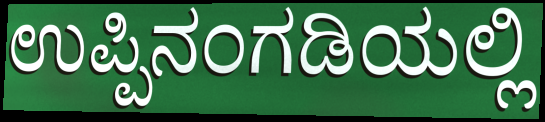
ಉಪ್ಪಿನಂಗಡಿಯಲ್ಲಿ